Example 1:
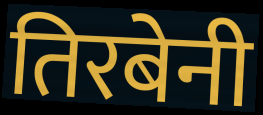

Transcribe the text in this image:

तिरबेनी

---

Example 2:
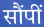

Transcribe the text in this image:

सौंपीं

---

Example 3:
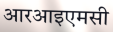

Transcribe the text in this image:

आरआइएमसी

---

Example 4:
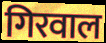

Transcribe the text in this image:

गिरवाल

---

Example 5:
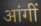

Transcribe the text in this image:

आंगीं